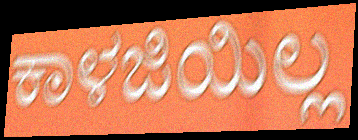
ಕಾಳಜಿಯಿಲ್ಲ